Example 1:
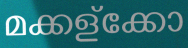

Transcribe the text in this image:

മക്കള്ക്കോ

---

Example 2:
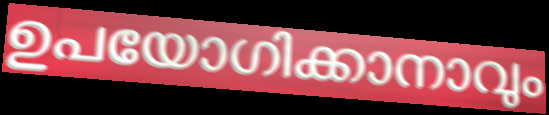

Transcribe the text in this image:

ഉപയോഗിക്കാനാവും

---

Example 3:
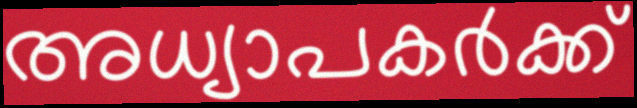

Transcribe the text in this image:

അധ്യാപകർക്ക്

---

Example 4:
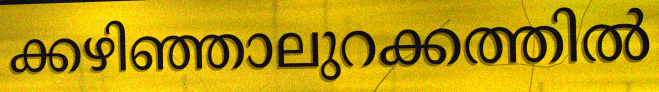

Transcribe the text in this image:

ക്കഴിഞ്ഞാലുറക്കത്തിൽ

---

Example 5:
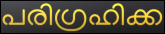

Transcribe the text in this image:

പരിഗ്രഹിക്ക